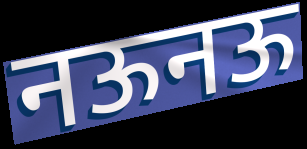
नऊनऊ